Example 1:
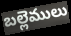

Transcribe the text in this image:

బల్లెములు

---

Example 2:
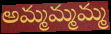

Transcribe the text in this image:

అమ్మమ్మమ్మ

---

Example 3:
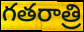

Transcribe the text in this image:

గతరాత్రి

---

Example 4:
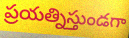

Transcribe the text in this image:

ప్రయత్నిస్తుండగా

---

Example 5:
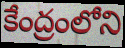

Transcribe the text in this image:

కేంద్రంలోని